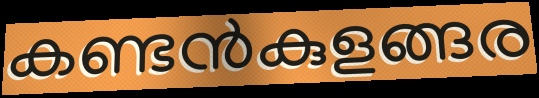
കണ്ടൻകുളങ്ങര